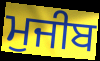
ਮੁਜੀਬ